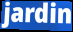
jardin